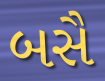
બસૈ